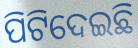
ପିଟିଦେଇଛି